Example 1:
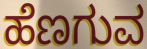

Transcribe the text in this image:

ಹೆಣಗುವ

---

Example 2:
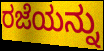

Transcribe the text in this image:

ರಜೆಯನ್ನು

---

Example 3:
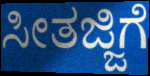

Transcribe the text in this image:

ಸೀತಜ್ಜಿಗೆ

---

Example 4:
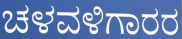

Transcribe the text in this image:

ಚಳವಳಿಗಾರರ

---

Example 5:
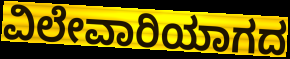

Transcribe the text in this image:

ವಿಲೇವಾರಿಯಾಗದ